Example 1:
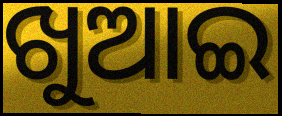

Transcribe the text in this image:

ଖୁଆଇ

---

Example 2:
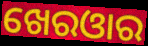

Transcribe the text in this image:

ଖେରଓାର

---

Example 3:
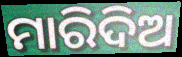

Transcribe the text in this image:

ମାରିଦିଅ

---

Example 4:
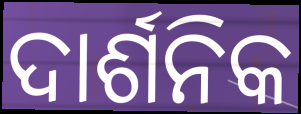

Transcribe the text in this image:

ଦାର୍ଶନିକ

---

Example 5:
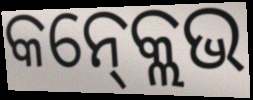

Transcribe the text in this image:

କନ୍କ୍ଲେଭ